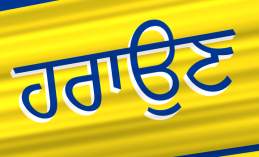
ਹਰਾਉਣ